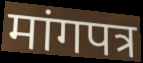
मांगपत्र